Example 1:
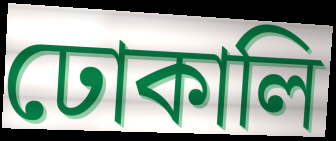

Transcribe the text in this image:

ঢোকালি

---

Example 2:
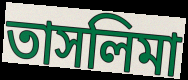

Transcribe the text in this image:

তাসলিমা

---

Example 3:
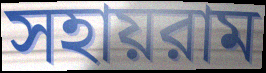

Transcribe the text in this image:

সহায়রাম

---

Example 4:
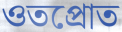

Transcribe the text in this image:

ওতপ্রোত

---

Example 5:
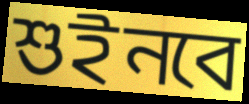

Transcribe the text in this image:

শুইনবে